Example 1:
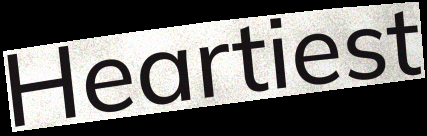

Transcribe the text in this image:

Heartiest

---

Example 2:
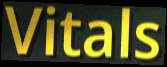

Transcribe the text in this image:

Vitals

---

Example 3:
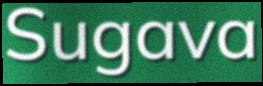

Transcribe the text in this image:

Sugava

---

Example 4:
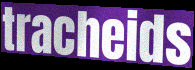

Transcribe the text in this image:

tracheids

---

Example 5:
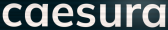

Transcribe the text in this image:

caesura